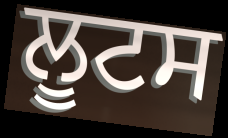
ਲੂਟਸ